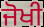
ਜੋਖੀ